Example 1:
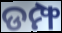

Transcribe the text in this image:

ଡମ୍ଫ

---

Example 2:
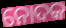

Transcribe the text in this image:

ନୋଦକ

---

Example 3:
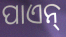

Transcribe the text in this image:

ପାଏନ୍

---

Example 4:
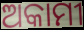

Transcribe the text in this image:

ଅକାମୀ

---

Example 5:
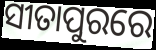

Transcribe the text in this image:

ସୀତାପୁରରେ